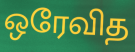
ஒரேவித